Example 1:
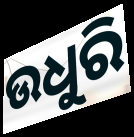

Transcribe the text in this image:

ଉଧୁରି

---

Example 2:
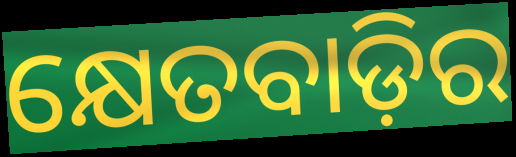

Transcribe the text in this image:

କ୍ଷେତବାଡ଼ିର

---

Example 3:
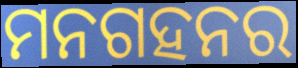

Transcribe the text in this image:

ମନଗହନର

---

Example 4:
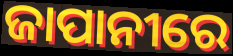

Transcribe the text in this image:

ଜାପାନୀରେ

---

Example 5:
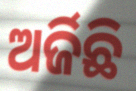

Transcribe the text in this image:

ଅର୍ଜିଛି